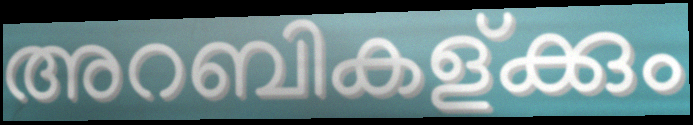
അറബികള്ക്കും